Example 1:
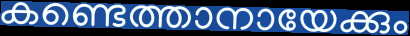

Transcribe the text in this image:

കണ്ടെത്താനായേക്കും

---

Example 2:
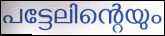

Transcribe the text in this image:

പട്ടേലിന്റെയും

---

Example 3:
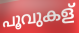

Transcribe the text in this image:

പൂവുകള്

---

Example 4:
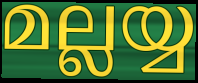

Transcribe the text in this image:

മല്ലയ്യ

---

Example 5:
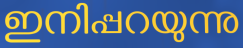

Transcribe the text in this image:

ഇനിപ്പറയുന്നു